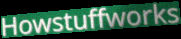
Howstuffworks